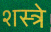
शस्त्रे